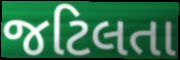
જટિલતા